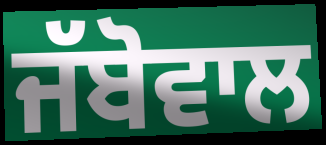
ਜੱਬੋਵਾਲ